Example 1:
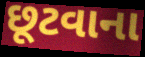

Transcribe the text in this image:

છૂટવાના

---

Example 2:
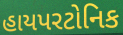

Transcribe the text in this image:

હાયપરટોનિક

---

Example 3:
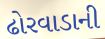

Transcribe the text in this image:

ઢોરવાડાની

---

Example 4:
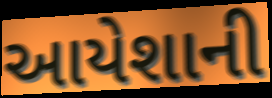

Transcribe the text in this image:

આયેશાની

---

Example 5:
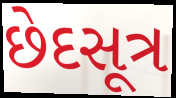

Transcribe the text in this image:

છેદસૂત્ર